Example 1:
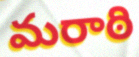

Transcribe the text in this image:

మరాఠి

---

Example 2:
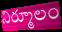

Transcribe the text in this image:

నిర్మూలం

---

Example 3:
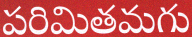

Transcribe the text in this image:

పరిమితమగు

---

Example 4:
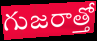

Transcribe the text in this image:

గుజరాత్తో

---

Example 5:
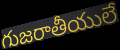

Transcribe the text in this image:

గుజరాతీయులే